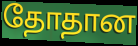
தோதான